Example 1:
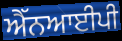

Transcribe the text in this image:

ਐੱਨਆਈਪੀ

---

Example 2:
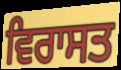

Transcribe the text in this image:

ਵਿਰਾਸਤ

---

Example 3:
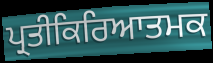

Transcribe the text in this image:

ਪ੍ਰਤੀਕਿਰਿਆਤਮਕ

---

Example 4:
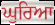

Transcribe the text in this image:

ਘੁਰਿਆ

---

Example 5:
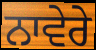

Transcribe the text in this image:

ਨਾਵੇਰੇ